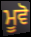
ਮੂਵੋ